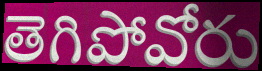
తెగిపోవోరు